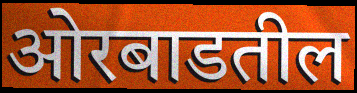
ओरबाडतील